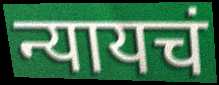
न्यायचं